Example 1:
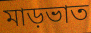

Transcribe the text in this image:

মাড়ভাত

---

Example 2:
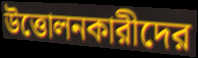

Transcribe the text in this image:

উত্তোলনকারীদের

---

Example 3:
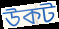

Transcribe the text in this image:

উকট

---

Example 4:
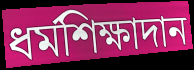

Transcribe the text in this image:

ধর্মশিক্ষাদান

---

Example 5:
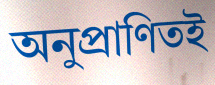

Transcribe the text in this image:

অনুপ্রাণিতই